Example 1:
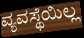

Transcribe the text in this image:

ವ್ಯವಸ್ಥೆಯಿಲ್ಲ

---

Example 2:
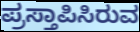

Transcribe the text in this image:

ಪ್ರಸ್ತಾಪಿಸಿರುವ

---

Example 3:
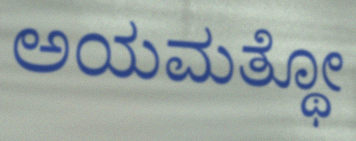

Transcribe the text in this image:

ಅಯಮತ್ಥೋ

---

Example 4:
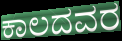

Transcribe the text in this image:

ಕಾಲದವರ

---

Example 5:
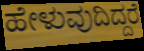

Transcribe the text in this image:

ಹೇಳುವುದಿದ್ದರೆ